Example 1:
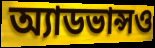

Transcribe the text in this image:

অ্যাডভান্সও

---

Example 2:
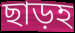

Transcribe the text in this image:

ছাড়হ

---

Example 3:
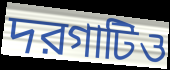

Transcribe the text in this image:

দরগাটিও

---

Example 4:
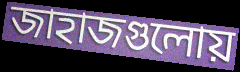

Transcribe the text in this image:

জাহাজগুলোয়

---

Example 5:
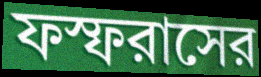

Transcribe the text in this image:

ফস্ফরাসের